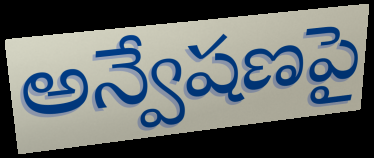
అన్వేషణపై